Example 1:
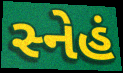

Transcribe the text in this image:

સ્નેહં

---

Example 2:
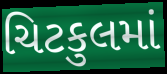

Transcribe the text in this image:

ચિટકુલમાં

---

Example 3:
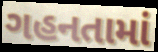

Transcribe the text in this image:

ગહનતામાં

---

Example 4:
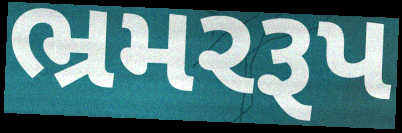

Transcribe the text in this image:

ભ્રમરરૂપ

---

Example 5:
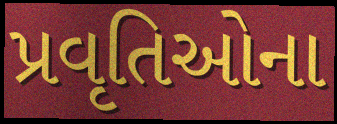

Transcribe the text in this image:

પ્રવૃતિઓના